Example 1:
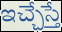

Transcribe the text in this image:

ఇచ్చేస్తే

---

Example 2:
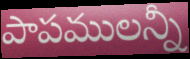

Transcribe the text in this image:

పాపములన్నీ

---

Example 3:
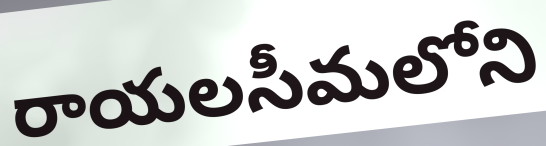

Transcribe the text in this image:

రాయలసీమలోని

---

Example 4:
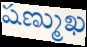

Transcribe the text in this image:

షణ్ముఖ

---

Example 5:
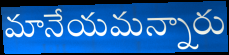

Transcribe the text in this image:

మానేయమన్నారు